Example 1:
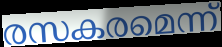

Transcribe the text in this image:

രസകരമെന്ന്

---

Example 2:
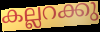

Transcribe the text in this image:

കല്ലറക്കു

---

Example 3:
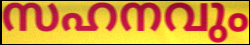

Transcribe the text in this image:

സഹനവും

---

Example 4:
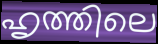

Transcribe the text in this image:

ഹൃത്തിലെ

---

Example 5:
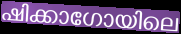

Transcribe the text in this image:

ഷിക്കാഗോയിലെ